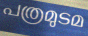
പത്രമുടമ